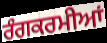
ਰੰਗਕਰਮੀਆਂ